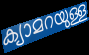
ക്യാമറയുള്ള